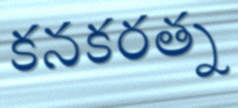
కనకరత్న